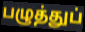
பழுத்துப்